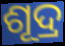
ଶୂଦ୍ର